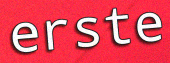
erste